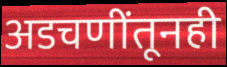
अडचणींतूनही